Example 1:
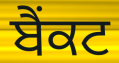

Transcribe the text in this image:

ਬੈਂਕਟ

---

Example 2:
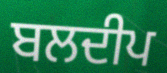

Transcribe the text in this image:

ਬਲਦੀਪ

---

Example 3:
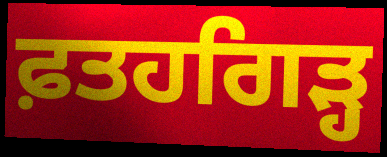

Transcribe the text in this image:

ਫ਼ਤਹਗਿੜ੍ਹ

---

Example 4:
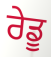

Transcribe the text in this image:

ਰੇਡੂ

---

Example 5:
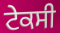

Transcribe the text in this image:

ਟੇਕਸੀ